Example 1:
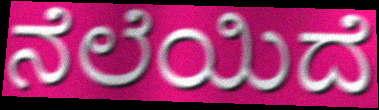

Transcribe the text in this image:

ನೆಲೆಯಿದೆ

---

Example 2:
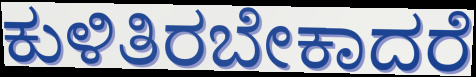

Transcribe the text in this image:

ಕುಳಿತಿರಬೇಕಾದರೆ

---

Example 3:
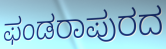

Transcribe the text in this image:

ಫಂಡರಾಪುರದ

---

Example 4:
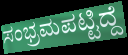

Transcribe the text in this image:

ಸಂಭ್ರಮಪಟ್ಟಿದ್ದೆ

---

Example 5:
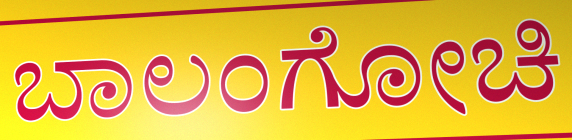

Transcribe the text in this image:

ಬಾಲಂಗೋಚಿ